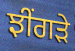
ਝੀਂਗੜੇ